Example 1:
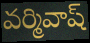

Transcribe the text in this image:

వర్మివాష్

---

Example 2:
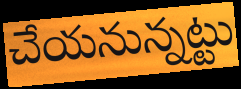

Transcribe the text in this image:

చేయనున్నట్టు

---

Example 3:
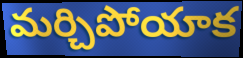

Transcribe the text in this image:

మర్చిపోయాక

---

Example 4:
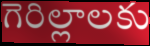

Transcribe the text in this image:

గెరిల్లాలకు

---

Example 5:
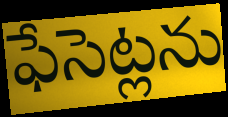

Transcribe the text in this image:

ఫేసెట్లను